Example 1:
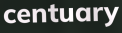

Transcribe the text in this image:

centuary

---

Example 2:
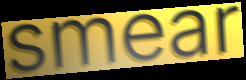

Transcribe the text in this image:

smear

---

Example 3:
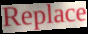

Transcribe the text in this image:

Replace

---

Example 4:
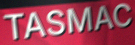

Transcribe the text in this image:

TASMAC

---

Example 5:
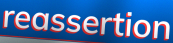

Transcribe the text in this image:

reassertion